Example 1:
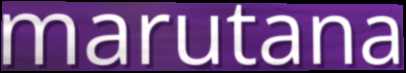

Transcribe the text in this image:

marutana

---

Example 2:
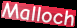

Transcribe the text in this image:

Malloch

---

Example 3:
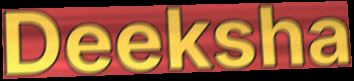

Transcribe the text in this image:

Deeksha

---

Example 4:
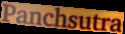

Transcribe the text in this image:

Panchsutra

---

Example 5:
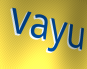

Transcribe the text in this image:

vayu